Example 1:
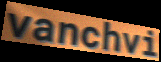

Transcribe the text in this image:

vanchvi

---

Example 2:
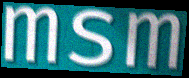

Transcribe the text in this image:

msm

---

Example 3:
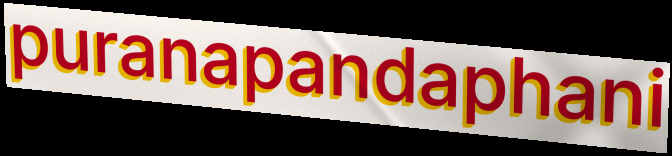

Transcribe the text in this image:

puranapandaphani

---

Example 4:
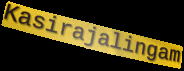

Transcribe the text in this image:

Kasirajalingam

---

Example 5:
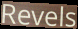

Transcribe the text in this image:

Revels